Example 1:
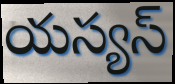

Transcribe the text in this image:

యస్యస్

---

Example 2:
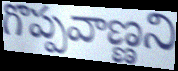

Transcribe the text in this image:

గొప్పవాణ్ణని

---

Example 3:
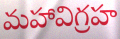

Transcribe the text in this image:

మహావిగ్రహ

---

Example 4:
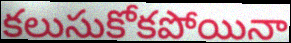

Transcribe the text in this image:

కలుసుకోకపోయినా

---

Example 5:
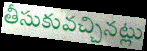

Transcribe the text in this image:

తీసుకువచ్చినట్లు